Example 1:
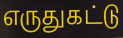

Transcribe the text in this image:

எருதுகட்டு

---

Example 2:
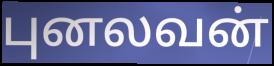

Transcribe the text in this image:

புனலவன்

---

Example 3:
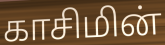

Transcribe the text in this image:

காசிமின்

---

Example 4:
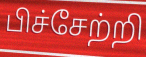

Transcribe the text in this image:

பிச்சேற்றி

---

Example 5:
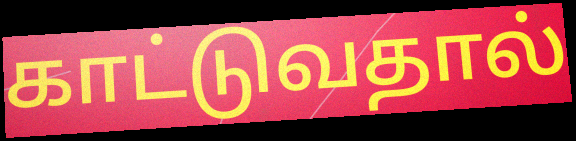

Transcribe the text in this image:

காட்டுவதால்